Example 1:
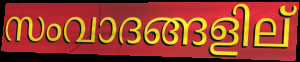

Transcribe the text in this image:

സംവാദങ്ങളില്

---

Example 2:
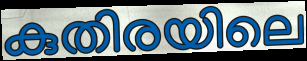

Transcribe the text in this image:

കുതിരയിലെ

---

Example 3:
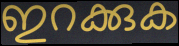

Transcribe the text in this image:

ഇറക്കുക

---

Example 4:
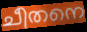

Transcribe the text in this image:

ചീതനെ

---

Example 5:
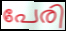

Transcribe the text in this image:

പേരി